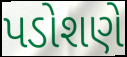
પડોશણે